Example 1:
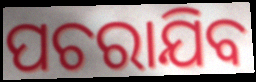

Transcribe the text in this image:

ପଚରାଯିବ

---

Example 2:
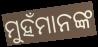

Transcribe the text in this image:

ମୁହଁମାନଙ୍କ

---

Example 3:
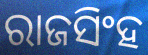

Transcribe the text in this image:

ରାଜସିଂହ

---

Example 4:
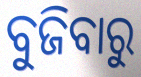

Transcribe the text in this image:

ବୁଜିବାରୁ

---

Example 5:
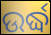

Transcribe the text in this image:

ଉର୍ଦ୍ଧ